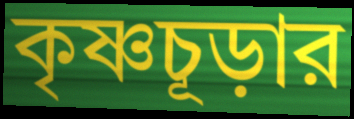
কৃষ্ণচূড়ার